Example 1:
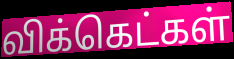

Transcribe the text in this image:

விக்கெட்கள்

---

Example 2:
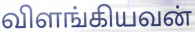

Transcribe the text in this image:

விளங்கியவன்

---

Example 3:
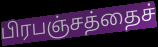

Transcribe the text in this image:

பிரபஞ்சத்தைச்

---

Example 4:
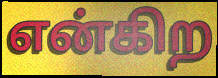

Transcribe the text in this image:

என்கிற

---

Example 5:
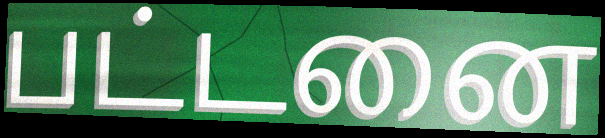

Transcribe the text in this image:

பட்டனை